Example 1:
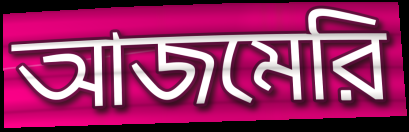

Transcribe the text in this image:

আজমেরি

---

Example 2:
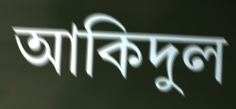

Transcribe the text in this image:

আকিদুল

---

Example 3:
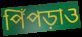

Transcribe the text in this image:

পিঁপড়াও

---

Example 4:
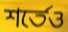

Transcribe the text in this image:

শর্তেও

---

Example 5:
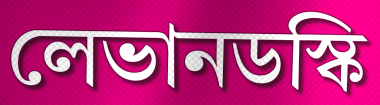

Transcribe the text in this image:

লেভানডস্কি